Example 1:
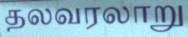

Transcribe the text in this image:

தலவரலாறு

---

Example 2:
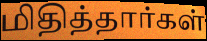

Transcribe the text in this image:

மிதித்தார்கள்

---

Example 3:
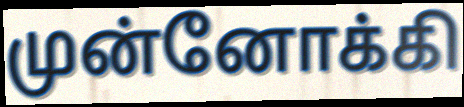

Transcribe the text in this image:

முன்னோக்கி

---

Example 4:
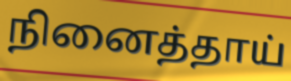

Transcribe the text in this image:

நினைத்தாய்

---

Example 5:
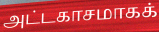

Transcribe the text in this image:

அட்டகாசமாகக்